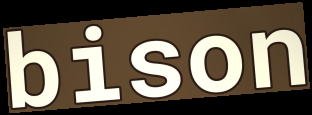
bison